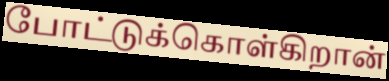
போட்டுக்கொள்கிறான்